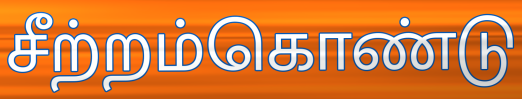
சீற்றம்கொண்டு